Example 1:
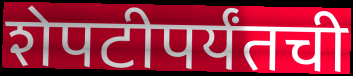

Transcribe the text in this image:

शेपटीपर्यंतची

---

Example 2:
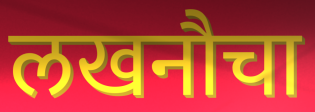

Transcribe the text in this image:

लखनौचा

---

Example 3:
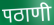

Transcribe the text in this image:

पठाणी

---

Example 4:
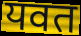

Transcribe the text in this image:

यवत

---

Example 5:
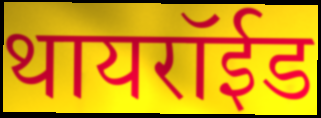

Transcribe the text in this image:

थायरॉईड